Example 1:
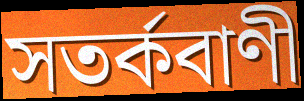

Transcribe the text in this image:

সতৰ্কবাণী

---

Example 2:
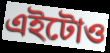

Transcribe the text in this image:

এইটোও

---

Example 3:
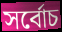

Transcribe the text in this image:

সৰ্বোচ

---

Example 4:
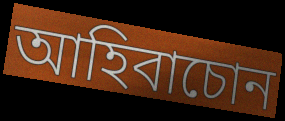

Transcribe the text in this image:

আহিবাচোন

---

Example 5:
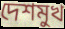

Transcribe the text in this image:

দেশমুখ